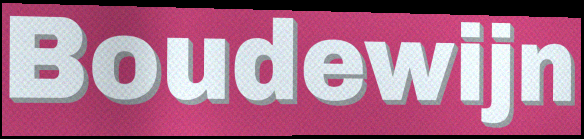
Boudewijn